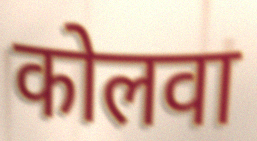
कोलवा